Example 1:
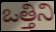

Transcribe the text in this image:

ఒత్తిని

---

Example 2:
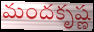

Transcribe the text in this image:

మందకృష్ణ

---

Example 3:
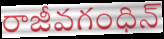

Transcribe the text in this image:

రాజీవగంధిన్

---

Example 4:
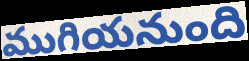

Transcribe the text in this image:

ముగియనుంది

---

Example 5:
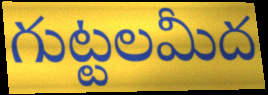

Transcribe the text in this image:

గుట్టలమీద